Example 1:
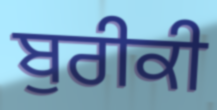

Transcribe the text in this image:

ਬੁਰੀਕੀ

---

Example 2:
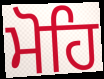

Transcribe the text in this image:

ਮੋਹਿ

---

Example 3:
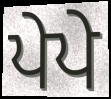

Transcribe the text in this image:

ਪੇਪੇ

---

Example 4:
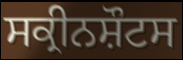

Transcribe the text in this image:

ਸਕ੍ਰੀਨਸ਼ੌਟਸ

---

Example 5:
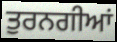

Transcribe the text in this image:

ਤੁਰਨਗੀਆਂ